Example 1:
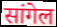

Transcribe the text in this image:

सांगेल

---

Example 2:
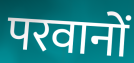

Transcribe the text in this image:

परवानों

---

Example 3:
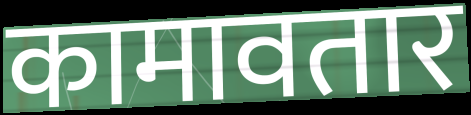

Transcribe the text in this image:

कामावतार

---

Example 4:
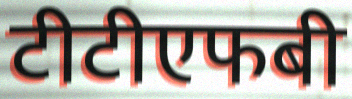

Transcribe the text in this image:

टीटीएफबी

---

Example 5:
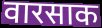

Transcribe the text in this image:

वारसाक